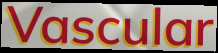
Vascular